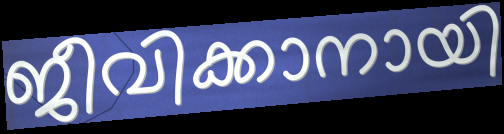
ജീവിക്കാനായി